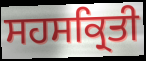
ਸਹਸਕ੍ਰਿਤੀ